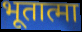
भूतात्मा